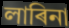
লাৰিনা